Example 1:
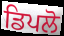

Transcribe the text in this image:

ਡਿਪਲੋ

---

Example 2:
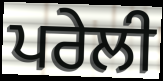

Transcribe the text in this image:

ਪਰੇਲੀ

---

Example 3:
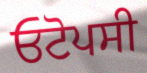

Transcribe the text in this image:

ਓਟੋਪਸੀ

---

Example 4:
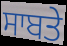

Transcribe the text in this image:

ਸਾਬਤੇ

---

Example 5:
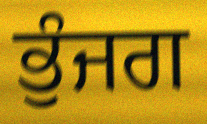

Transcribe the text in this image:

ਭੁੰਜਗ